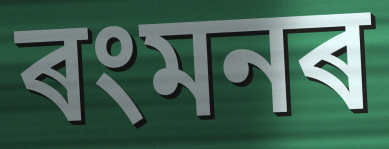
ৰংমনৰ